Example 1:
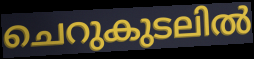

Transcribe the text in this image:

ചെറുകുടലിൽ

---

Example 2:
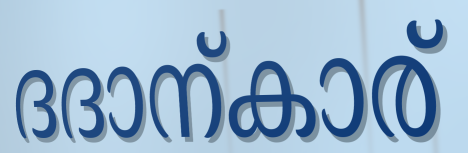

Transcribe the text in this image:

ദദാന്കാര്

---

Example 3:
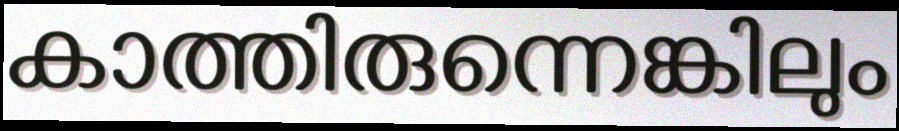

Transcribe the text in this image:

കാത്തിരുന്നെങ്കിലും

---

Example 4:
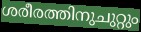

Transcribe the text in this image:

ശരീരത്തിനുചുറ്റും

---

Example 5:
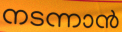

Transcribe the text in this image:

നടന്നാൻ